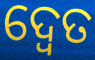
ଦ୍ବେତ